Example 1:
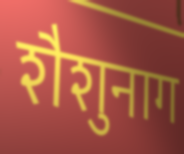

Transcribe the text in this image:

शैशुनाग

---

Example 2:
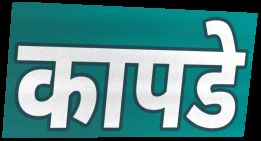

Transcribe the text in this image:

कापडे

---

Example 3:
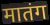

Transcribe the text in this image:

मातंग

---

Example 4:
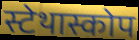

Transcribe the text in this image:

स्टेथास्कोप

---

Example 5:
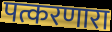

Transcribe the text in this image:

पत्करणारा